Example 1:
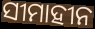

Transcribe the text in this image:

ସୀମାହୀନ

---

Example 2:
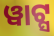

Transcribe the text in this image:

ୱାଟ୍ସ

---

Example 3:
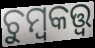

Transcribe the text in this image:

ଚୁମ୍ବକତ୍ତ୍ୱ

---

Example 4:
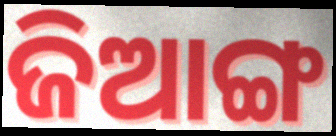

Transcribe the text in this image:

ଜିଆଙ୍ଗ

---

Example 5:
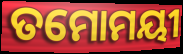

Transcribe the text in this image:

ତମୋମୟୀ